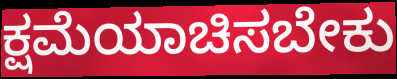
ಕ್ಷಮೆಯಾಚಿಸಬೇಕು